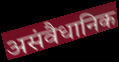
असंवैधानिक